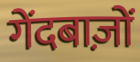
गेंदबाज़ों